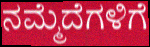
ನಮ್ಮೆದೆಗಳಿಗೆ